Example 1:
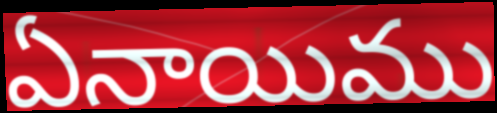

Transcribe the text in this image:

ఏనాయిము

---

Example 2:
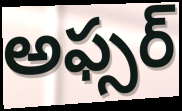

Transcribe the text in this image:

అఫ్సర్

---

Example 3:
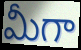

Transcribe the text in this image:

మీగా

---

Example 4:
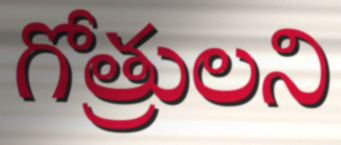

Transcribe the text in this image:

గోత్రులని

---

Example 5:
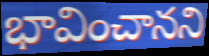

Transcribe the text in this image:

భావించానని